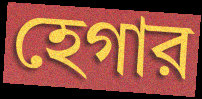
হেগার